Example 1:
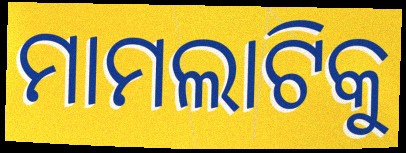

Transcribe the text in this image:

ମାମଲାଟିକୁ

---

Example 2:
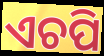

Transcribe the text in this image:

ଏଚପି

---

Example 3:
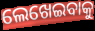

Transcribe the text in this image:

ଲେଖେଇବାକୁ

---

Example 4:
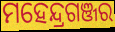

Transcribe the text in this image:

ମହେନ୍ଦ୍ରଗଞ୍ଜର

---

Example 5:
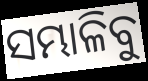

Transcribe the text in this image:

ସମ୍ଭାଳିବୁ